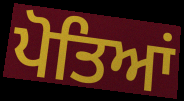
ਪੋਤਿਆਂ